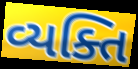
વ્યક્તિ